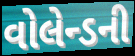
વોલેન્ડની